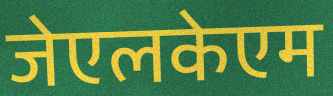
जेएलकेएम